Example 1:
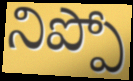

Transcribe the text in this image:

నిప్పో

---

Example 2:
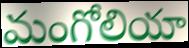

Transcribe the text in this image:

మంగోలియా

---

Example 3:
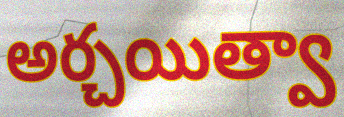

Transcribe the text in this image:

అర్చయిత్వా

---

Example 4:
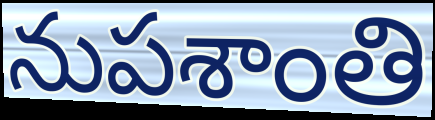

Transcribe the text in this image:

నుపశాంతి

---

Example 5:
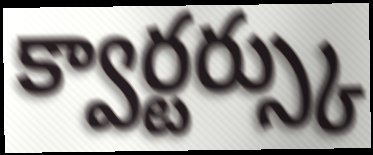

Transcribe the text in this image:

క్వార్టర్స్కు